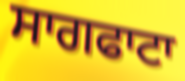
ਸਾਗਫਾਟਾ